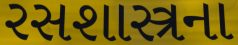
રસશાસ્ત્રના